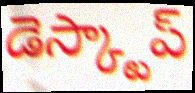
డెస్క్టాప్